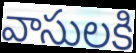
వాసులకి